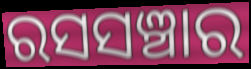
ରସସଞ୍ଚାର